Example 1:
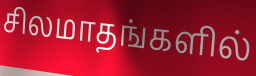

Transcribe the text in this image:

சிலமாதங்களில்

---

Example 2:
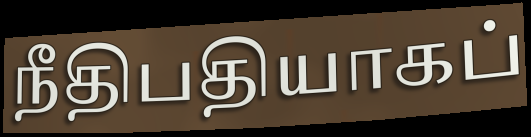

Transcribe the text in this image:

நீதிபதியாகப்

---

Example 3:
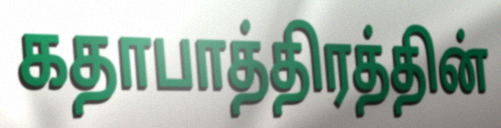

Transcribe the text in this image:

கதாபாத்திரத்தின்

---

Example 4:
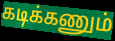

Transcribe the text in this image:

கடிக்கணும்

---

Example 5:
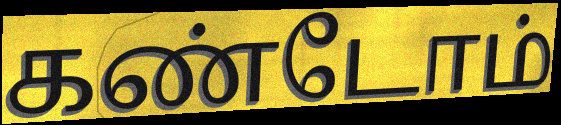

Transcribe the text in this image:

கண்டோம்